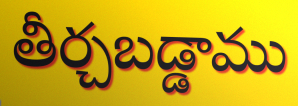
తీర్చబడ్డాము